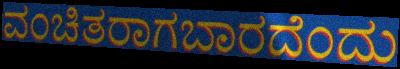
ವಂಚಿತರಾಗಬಾರದೆಂದು